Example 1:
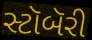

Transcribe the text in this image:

સ્ટૉબૅરી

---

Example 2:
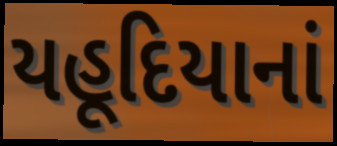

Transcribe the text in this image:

યહૂદિયાનાં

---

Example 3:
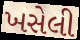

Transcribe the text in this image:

ખસેલી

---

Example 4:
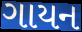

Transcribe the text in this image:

ગાયન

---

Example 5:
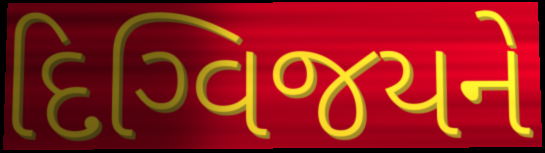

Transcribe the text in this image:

દિગ્વિજયને